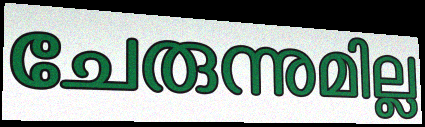
ചേരുന്നുമില്ല